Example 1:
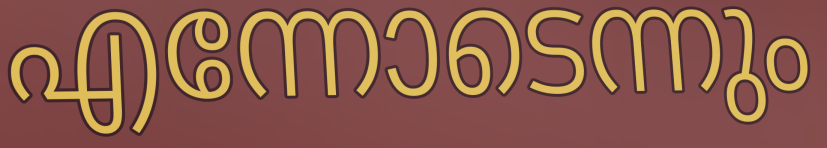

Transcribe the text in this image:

എന്നോടെന്നും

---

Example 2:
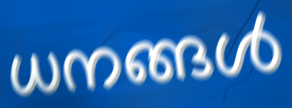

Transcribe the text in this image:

ധനങ്ങൾ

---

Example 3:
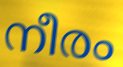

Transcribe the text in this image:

നീരം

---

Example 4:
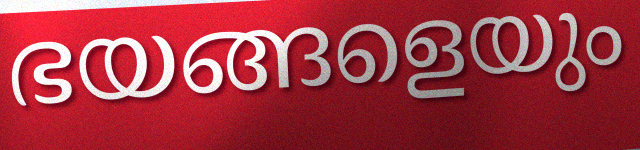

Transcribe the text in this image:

ഭയങ്ങളെയും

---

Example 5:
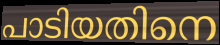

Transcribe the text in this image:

പാടിയതിനെ